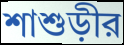
শাশুড়ীর